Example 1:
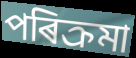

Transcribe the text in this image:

পৰিক্ৰমা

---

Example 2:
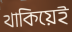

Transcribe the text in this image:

থাকিয়েই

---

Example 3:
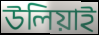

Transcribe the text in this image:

উলিয়াই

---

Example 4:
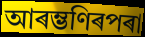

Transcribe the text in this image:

আৰম্ভণিৰপৰা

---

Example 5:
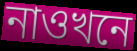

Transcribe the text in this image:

নাওখনে